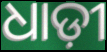
ଧାଡ଼ୀ